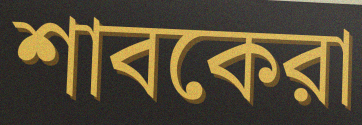
শাবকেরা